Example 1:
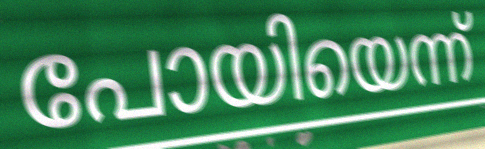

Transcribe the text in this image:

പോയിയെന്ന്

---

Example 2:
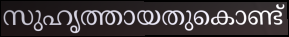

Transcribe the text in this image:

സുഹൃത്തായതുകൊണ്ട്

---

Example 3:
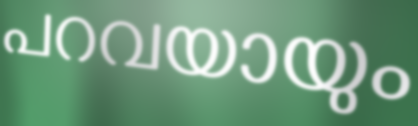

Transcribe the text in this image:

പറവയായും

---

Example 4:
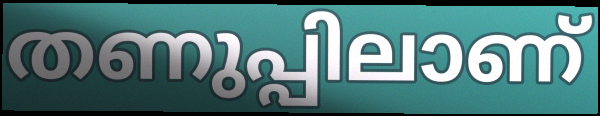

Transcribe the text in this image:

തണുപ്പിലാണ്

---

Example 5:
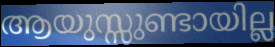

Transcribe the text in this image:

ആയുസ്സുണ്ടായില്ല